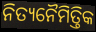
ନିତ୍ୟନୈମିତ୍ତିକ